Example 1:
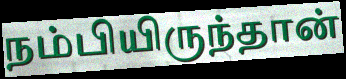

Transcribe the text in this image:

நம்பியிருந்தான்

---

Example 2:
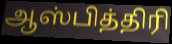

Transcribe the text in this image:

ஆஸ்பித்திரி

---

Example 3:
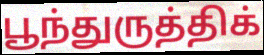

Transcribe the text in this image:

பூந்துருத்திக்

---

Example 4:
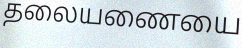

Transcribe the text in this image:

தலையணையை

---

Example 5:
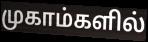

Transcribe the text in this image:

முகாம்களில்